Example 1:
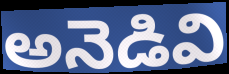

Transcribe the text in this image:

అనెడివి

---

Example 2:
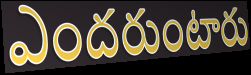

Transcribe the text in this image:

ఎందరుంటారు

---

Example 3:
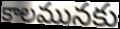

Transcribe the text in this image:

కాలమునకు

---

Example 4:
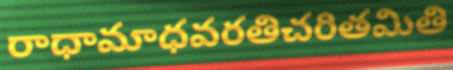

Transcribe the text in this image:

రాధామాధవరతిచరితమితి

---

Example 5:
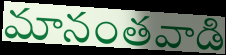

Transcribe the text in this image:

మానంతవాడి